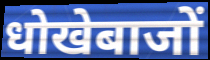
धोखेबाजों